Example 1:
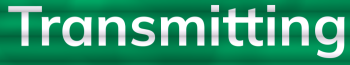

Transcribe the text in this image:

Transmitting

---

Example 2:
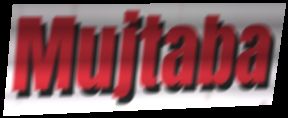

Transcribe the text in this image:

Mujtaba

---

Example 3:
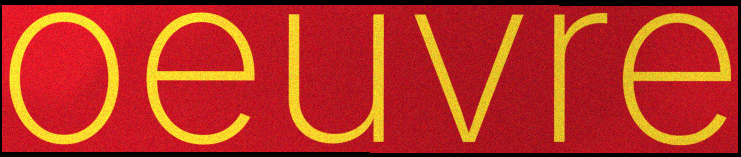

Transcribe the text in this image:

oeuvre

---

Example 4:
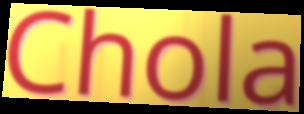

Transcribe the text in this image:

Chola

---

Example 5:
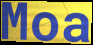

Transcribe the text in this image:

Moa